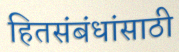
हितसंबंधांसाठी